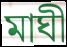
মাঘী